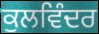
ਕੁਲਵਿੰਦਰ